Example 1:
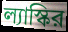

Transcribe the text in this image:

ল্যাস্কির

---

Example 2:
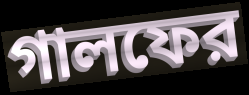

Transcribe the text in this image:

গালফের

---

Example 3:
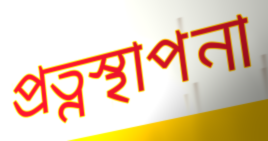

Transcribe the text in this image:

প্রত্নস্থাপনা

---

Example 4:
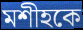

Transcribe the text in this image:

মশীহকে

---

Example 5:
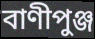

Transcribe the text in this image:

বাণীপুঞ্জ